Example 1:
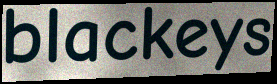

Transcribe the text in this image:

blackeys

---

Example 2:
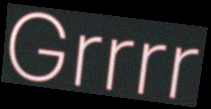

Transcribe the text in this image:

Grrrr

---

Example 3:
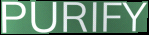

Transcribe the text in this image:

PURIFY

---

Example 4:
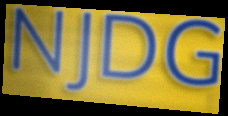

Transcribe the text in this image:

NJDG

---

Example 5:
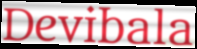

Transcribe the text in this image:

Devibala